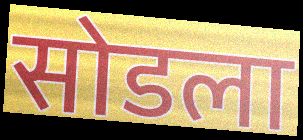
सोडला